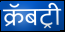
क्रॅबट्री